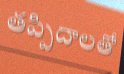
తప్పిదాలతో